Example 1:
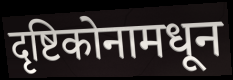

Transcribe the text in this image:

दृष्टिकोनामधून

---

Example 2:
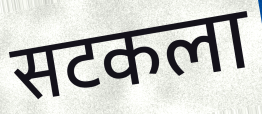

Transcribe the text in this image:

सटकला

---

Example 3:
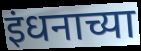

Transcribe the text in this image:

इंधनाच्या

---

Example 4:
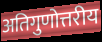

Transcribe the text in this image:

अतिगुणोत्तरीय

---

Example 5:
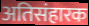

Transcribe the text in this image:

अतिसंहारक